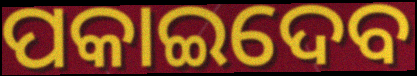
ପକାଇଦେବ